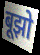
बूझो